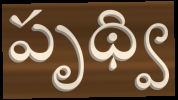
పృథ్వి